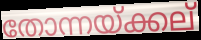
തോന്നയ്ക്കല്